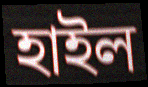
হাইল